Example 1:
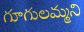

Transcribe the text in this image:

గూగులమ్మని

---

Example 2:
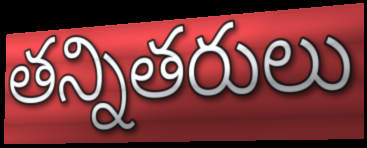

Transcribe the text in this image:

తన్నితరులు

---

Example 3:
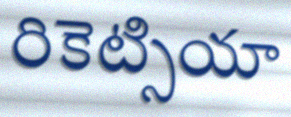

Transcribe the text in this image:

రికెట్సియా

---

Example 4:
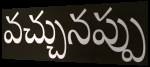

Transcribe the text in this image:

వచ్చునప్పు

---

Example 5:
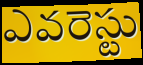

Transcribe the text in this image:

ఎవరెస్టు